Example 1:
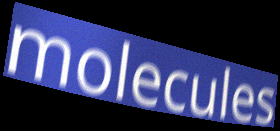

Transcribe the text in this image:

molecules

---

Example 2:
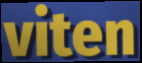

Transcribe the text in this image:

viten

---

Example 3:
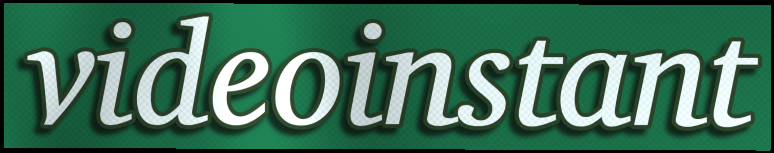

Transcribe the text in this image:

videoinstant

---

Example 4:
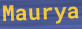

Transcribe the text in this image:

Maurya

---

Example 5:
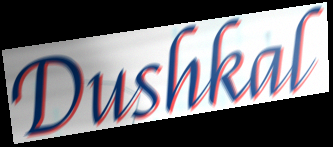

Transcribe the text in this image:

Dushkal